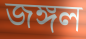
জঙ্গল